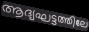
ആദ്യഘട്ടത്തിലേ